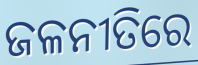
ଜଳନୀତିରେ